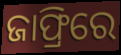
ଜାଫ୍ରିରେ